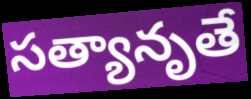
సత్యానృతే